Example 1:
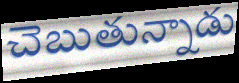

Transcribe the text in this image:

చెబుతున్నాడు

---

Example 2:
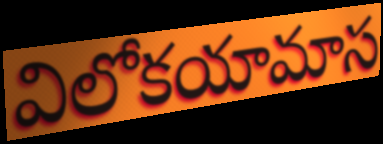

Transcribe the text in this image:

విలోకయామాస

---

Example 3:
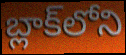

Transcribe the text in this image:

బ్లాక్‌లోని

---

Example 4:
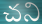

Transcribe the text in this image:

చని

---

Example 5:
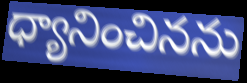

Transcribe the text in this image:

ధ్యానించినను